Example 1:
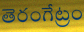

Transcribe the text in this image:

తెరంగేట్రం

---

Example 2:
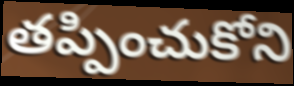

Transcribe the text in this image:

తప్పించుకోని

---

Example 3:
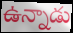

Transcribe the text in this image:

ఉన్నాడు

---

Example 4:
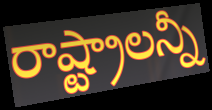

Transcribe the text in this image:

రాష్ట్రాలన్నీ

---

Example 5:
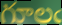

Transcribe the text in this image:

గూలఁ